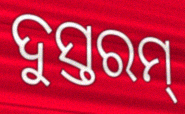
ଦୁସ୍ତରମ୍